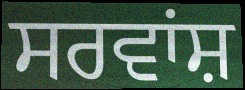
ਸਰਵਾਂਸ਼